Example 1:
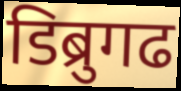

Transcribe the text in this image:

डिब्रुगढ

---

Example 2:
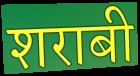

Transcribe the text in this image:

शराबी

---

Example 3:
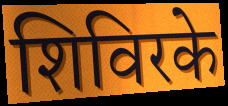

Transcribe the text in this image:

शिविरके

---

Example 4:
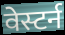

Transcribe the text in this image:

वेस्‍टर्न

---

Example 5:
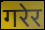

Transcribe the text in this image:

गरेर